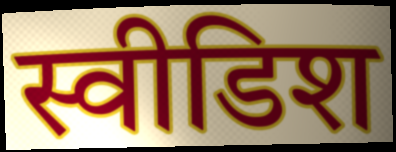
स्वीडिश